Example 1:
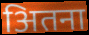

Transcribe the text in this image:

अितना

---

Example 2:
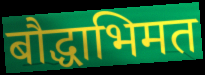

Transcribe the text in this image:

बौद्धाभिमत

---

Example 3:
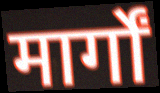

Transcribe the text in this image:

मार्गोँ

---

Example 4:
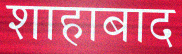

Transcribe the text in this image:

शाहाबाद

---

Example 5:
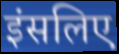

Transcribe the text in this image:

इंसलिए